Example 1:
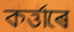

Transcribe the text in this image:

কৰ্ত্তাৰে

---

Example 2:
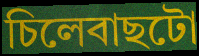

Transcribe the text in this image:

চিলেবাছটো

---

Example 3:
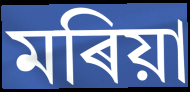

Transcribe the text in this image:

মৰিয়া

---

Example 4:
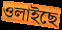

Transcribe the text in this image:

ওলাইছে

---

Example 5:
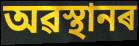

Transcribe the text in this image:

অৱস্থানৰ